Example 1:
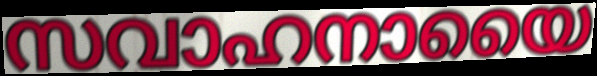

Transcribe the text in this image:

സവാഹനായൈ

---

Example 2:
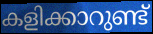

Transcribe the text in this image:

കളിക്കാറുണ്ട്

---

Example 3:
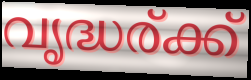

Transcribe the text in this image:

വൃദ്ധര്ക്ക്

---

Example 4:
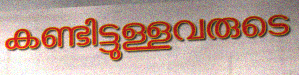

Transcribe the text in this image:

കണ്ടിട്ടുള്ളവരുടെ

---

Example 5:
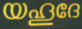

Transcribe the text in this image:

യഹൂദേ